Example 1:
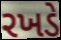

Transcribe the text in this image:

રખડે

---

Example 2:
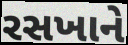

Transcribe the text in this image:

રસખાને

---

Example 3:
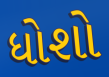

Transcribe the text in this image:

ધોશો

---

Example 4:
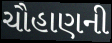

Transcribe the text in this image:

ચૌહાણની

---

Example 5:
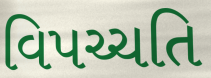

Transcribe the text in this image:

વિપચ્ચતિ